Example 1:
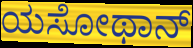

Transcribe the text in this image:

ಯಸೋಥಾನ್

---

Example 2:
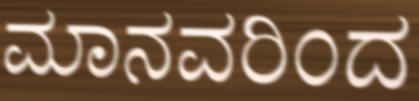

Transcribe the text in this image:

ಮಾನವರಿಂದ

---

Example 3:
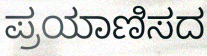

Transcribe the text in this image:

ಪ್ರಯಾಣಿಸದ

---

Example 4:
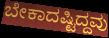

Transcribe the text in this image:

ಬೇಕಾದಷ್ಟಿದ್ದವು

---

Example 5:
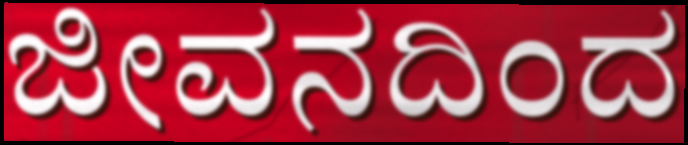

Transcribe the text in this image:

ಜೀವನದಿಂದ